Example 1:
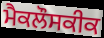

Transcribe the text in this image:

ਮੈਕਲੌਸਕੀਕ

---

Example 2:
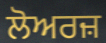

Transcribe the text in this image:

ਲੋਅਰਜ਼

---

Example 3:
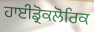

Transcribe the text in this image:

ਹਾਈਡ੍ਰੋਕਲੋਰਿਕ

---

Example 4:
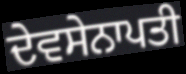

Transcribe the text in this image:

ਦੇਵਸੇਨਾਪਤੀ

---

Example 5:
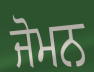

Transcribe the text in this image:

ਜੋਮਨ